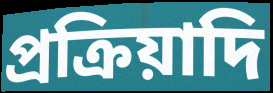
প্রক্রিয়াদি